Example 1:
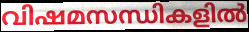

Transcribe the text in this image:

വിഷമസന്ധികളിൽ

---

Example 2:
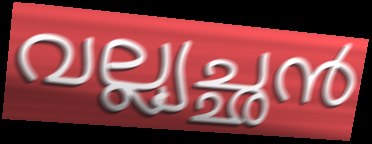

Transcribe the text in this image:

വല്ല്യച്ഛൻ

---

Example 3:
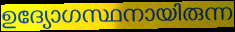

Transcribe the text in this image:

ഉദ്യോഗസ്ഥനായിരുന്ന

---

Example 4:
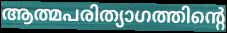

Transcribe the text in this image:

ആത്മപരിത്യാഗത്തിന്റെ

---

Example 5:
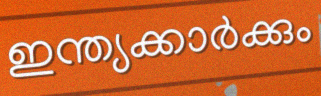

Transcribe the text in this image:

ഇന്ത്യക്കാർക്കും